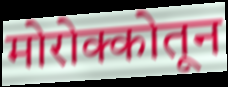
मोरोक्कोतून